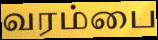
வரம்பை